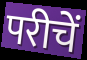
परीचें